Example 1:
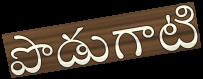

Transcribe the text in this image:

పొడుగాటి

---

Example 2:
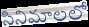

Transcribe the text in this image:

సినిమాలలో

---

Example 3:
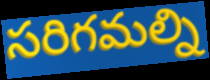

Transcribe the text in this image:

సరిగమల్ని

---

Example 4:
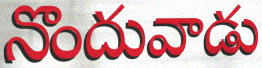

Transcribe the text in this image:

నొందువాడు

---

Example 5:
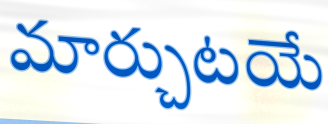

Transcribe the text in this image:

మార్చుటయే